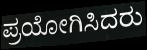
ಪ್ರಯೋಗಿಸಿದರು